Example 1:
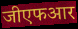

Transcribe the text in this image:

जीएफआर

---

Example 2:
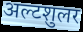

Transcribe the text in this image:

अल्टशुलर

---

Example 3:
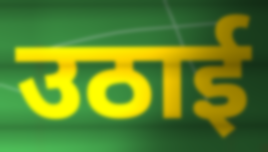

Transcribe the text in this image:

उठाई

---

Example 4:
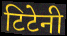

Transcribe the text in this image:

टिटेनी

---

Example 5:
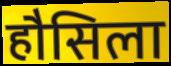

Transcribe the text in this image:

हौसिला